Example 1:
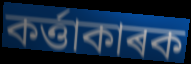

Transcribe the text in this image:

কৰ্ত্তাকাৰক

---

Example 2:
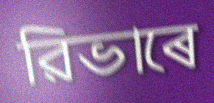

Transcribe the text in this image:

ৱিভাৰে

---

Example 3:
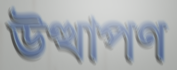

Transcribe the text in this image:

উত্থাপণ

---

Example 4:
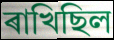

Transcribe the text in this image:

ৰাখিছিল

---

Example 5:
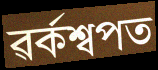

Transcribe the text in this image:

ৱৰ্কশ্বপত